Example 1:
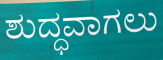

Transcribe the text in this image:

ಶುದ್ಧವಾಗಲು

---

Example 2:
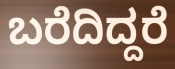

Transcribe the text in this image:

ಬರೆದಿದ್ದರೆ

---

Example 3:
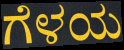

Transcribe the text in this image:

ಗೆಳಯ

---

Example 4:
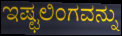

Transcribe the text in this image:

ಇಷ್ಟಲಿಂಗವನ್ನು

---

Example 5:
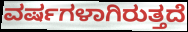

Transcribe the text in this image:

ವರ್ಷಗಳಾಗಿರುತ್ತದೆ